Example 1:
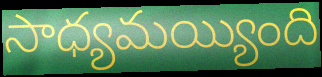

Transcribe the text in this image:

సాధ్యమయ్యింది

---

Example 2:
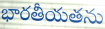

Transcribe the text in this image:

భారతీయతను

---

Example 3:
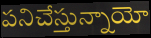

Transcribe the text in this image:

పనిచేస్తున్నాయో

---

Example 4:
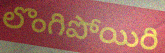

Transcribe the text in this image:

లొంగిపోయిరి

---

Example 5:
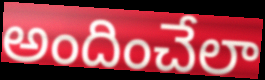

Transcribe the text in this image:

అందించేలా